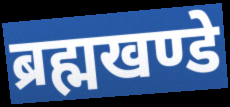
ब्रह्मखण्डे